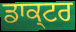
ਡਾਕ੍ਟਰ